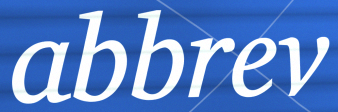
abbrev